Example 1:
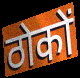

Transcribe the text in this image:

ठोकों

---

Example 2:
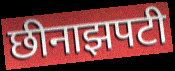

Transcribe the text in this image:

छीनाझपटी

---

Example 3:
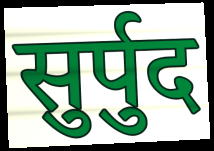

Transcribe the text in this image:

सुर्पुद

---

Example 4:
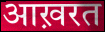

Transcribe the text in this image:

आख़रत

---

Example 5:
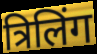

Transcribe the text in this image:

त्रिलिंग